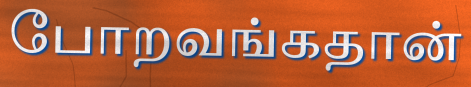
போறவங்கதான்